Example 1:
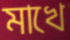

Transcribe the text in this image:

মাখে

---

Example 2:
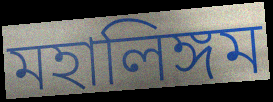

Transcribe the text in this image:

মহালিঙ্গম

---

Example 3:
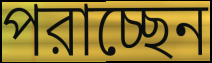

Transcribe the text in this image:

পরাচ্ছেন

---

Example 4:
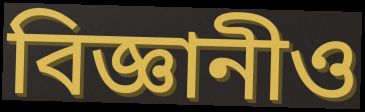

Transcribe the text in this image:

বিজ্ঞানীও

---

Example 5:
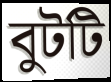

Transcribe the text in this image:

বুটটি